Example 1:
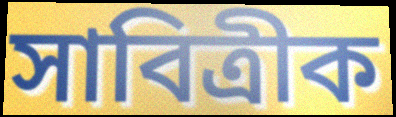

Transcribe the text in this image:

সাবিত্ৰীক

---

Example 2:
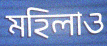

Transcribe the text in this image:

মহিলাও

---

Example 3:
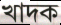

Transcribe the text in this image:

খাদক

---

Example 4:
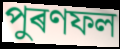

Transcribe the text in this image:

পুৰণফল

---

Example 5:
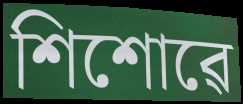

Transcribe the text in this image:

শিশোৱে